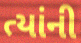
ત્યાંની